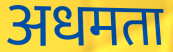
अधमता